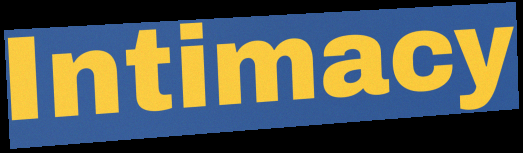
Intimacy